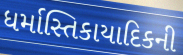
ધર્માસ્તિકાયાદિકની